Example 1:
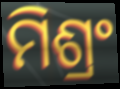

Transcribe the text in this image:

ମିଶ୍ରଂ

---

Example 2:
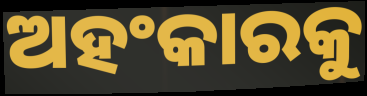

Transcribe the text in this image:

ଅହଂକାରକୁ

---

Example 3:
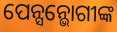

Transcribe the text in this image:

ପେନ୍ସନ୍ଭୋଗୀଙ୍କ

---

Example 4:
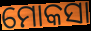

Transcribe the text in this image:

ମୋକସା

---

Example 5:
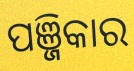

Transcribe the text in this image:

ପଞ୍ଜିକାର